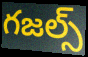
గజల్స్